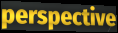
perspective